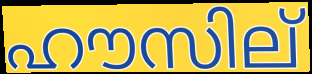
ഹൗസില്